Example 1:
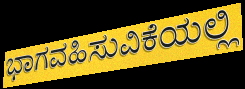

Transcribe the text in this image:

ಭಾಗವಹಿಸುವಿಕೆಯಲ್ಲಿ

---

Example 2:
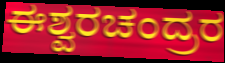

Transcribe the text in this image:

ಈಶ್ವರಚಂದ್ರರ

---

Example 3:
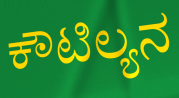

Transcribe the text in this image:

ಕೌಟಿಲ್ಯನ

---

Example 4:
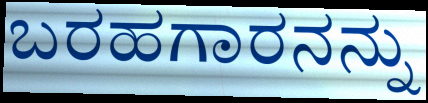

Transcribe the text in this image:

ಬರಹಗಾರನನ್ನು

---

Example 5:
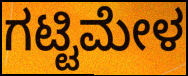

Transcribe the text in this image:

ಗಟ್ಟಿಮೇಳ